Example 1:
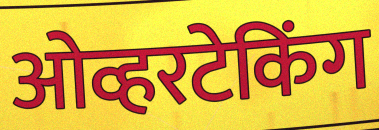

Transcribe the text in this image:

ओव्हरटेकिंग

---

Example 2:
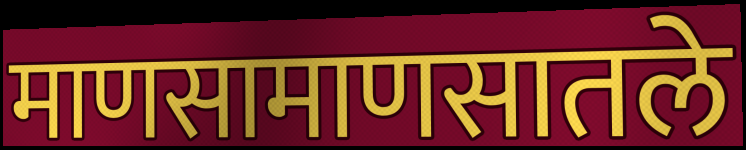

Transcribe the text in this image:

माणसामाणसातले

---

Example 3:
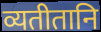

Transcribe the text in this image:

व्यतीतानि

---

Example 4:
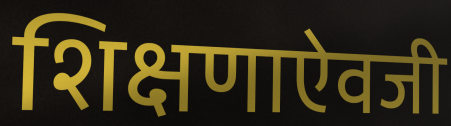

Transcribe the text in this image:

शिक्षणाऐवजी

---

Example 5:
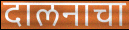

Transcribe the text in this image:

दालनाचा